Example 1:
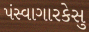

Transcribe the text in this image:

પંસ્વાગારકેસુ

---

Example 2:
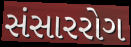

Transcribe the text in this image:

સંસારરોગ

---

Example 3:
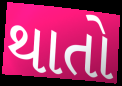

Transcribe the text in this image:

થાતો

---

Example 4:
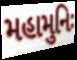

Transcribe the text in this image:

મહામુનિઃ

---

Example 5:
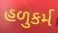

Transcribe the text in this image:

હળુકર્મ